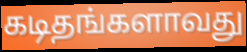
கடிதங்களாவது